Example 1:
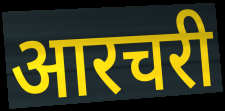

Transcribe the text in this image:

आरचरी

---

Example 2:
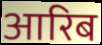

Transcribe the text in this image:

आरिब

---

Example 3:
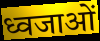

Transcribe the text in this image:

ध्वजाओं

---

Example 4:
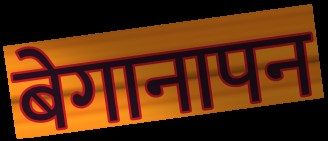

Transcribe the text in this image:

बेगानापन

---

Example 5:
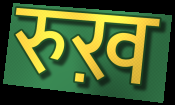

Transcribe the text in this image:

रुख़